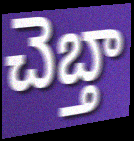
చెబ్తా